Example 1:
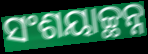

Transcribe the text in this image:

ସଂଶୟାଚ୍ଛନ୍ନ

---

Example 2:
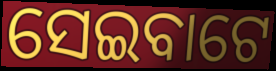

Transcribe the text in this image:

ସେଇବାଟେ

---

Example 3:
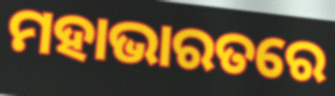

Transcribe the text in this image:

ମହାଭାରତରେ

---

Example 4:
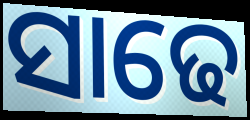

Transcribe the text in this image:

ସାଢେ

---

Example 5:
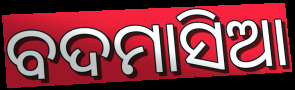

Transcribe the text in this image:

ବଦମାସିଆ